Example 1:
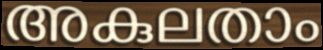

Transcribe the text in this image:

അകുലതാം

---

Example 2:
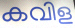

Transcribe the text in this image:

കവിള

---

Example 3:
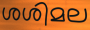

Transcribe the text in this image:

ശശിമല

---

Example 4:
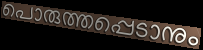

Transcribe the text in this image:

പൊരുത്തപ്പെടാനും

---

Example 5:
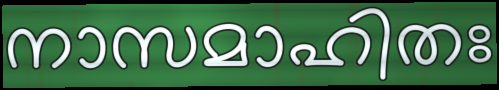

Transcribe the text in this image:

നാസമാഹിതഃ